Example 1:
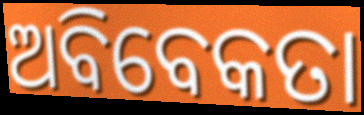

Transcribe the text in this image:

ଅବିବେକତା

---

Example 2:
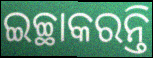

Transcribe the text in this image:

ଇଚ୍ଛାକରନ୍ତି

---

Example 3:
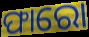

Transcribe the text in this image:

ଫାରୋ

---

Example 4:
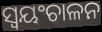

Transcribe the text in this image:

ସ୍ବୟଂଚାଳନ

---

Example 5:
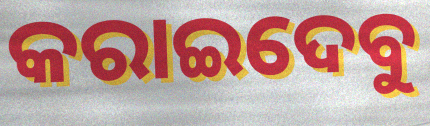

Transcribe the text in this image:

କରାଇଦେବୁ